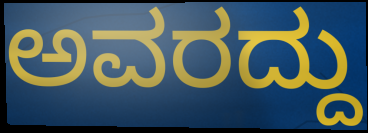
ಅವರದ್ದು